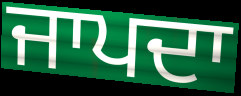
ਜਾਪਦਾ